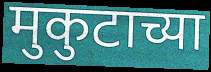
मुकुटाच्या